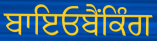
ਬਾਇਓਬੈਂਕਿੰਗ